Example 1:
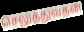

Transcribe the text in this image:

செலுத்துவதன்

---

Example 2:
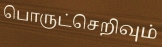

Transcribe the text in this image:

பொருட்செறிவும்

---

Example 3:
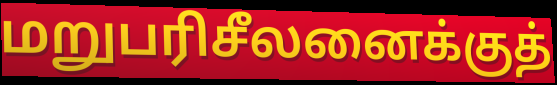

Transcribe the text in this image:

மறுபரிசீலனைக்குத்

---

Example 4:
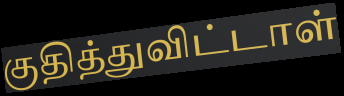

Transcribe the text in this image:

குதித்துவிட்டாள்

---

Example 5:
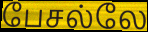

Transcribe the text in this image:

பேசல்லே